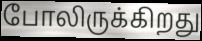
போலிருக்கிறது